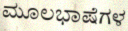
ಮೂಲಭಾಷೆಗಳ